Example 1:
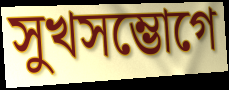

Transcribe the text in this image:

সুখসম্ভোগে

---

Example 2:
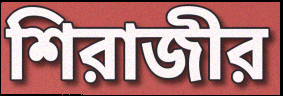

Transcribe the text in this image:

শিরাজীর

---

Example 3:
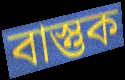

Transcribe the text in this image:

বাস্তুক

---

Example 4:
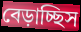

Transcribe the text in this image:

বেড়াচ্ছিস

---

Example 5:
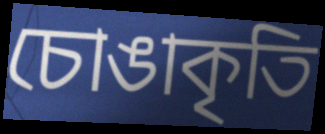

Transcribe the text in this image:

চোঙাকৃতি